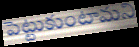
పెట్టుకుంటామని